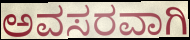
ಅವಸರವಾಗಿ